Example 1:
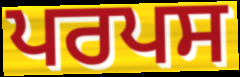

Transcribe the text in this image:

ਪਰਪਸ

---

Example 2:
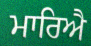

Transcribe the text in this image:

ਮਾਰਿਐ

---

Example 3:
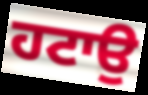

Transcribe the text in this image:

ਹਟਾਉ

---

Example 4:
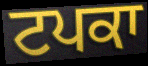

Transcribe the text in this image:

ਟਪਕਾ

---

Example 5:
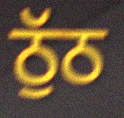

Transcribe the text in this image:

ਠੁੱਠ